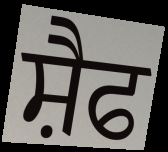
ਸ਼ੈਫ